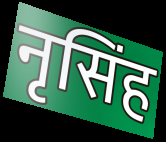
नृसिंह